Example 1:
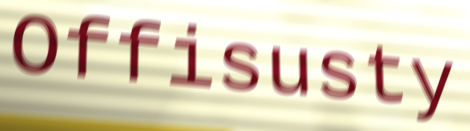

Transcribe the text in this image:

Offisusty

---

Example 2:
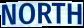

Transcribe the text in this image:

NORTH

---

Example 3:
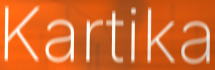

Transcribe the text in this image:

Kartika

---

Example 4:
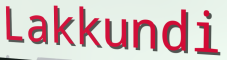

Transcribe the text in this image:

Lakkundi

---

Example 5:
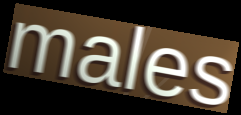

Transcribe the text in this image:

males